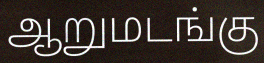
ஆறுமடங்கு